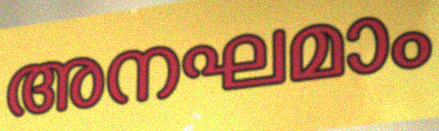
അനഘമാം